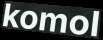
komol